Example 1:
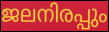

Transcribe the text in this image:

ജലനിരപ്പും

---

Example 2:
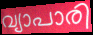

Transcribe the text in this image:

വ്യാപാരി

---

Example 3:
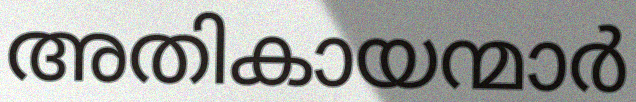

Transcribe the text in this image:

അതികായന്മാർ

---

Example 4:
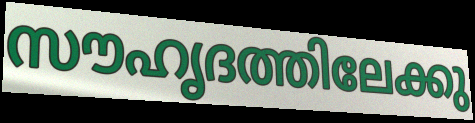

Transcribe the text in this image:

സൗഹൃദത്തിലേക്കു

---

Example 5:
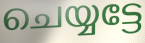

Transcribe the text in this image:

ചെയ്യട്ടേ